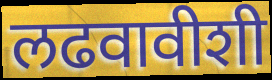
लढवावीशी